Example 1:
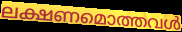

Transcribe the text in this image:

ലക്ഷണമൊത്തവൾ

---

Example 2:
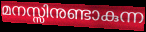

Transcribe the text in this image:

മനസ്സിനുണ്ടാകുന്ന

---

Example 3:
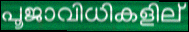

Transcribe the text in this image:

പൂജാവിധികളില്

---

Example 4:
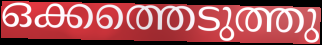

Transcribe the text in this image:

ഒക്കത്തെടുത്തു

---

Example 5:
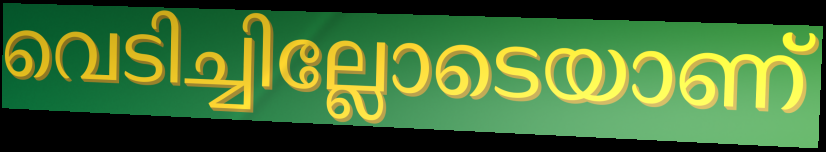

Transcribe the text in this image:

വെടിച്ചില്ലോടെയാണ്